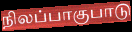
நிலப்பாகுபாடு